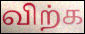
விற்க